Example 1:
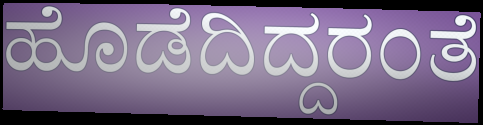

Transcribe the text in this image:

ಹೊಡೆದಿದ್ದರಂತೆ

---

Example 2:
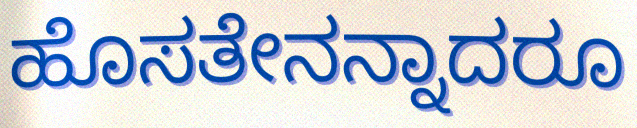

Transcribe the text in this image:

ಹೊಸತೇನನ್ನಾದರೂ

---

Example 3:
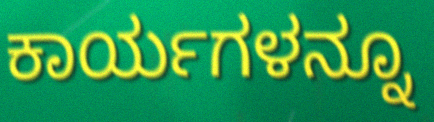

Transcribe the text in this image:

ಕಾರ್ಯಗಳನ್ನೂ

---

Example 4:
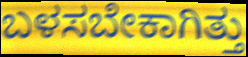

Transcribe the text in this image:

ಬಳಸಬೇಕಾಗಿತ್ತು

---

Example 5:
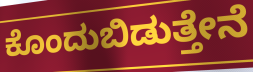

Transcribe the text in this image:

ಕೊಂದುಬಿಡುತ್ತೇನೆ